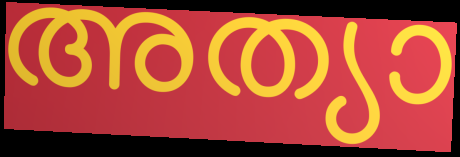
അത്യാ